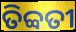
ତିବ୍ବତୀ